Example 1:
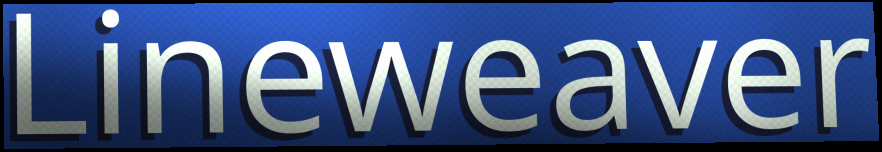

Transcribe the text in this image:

Lineweaver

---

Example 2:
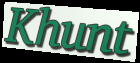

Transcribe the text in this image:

Khunt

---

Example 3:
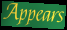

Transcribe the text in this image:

Appears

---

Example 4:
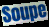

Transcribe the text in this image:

Soupe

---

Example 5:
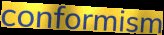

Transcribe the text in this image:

conformism